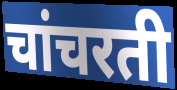
चांचरती